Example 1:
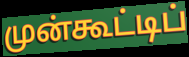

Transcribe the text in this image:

முன்கூட்டிப்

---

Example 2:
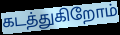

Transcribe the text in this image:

கடத்துகிறோம்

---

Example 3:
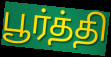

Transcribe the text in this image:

பூர்த்தி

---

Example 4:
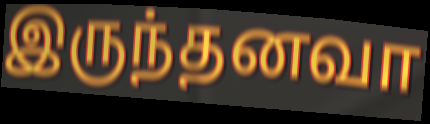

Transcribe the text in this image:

இருந்தனவா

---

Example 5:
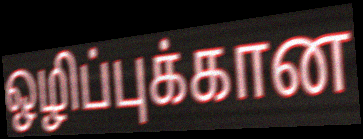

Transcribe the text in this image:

ஒழிப்புக்கான